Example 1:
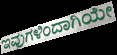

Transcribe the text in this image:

ಇವುಗಳಿಂದಾಗಿಯೇ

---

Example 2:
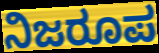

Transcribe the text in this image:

ನಿಜರೂಪ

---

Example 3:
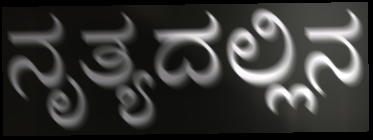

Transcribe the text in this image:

ನೃತ್ಯದಲ್ಲಿನ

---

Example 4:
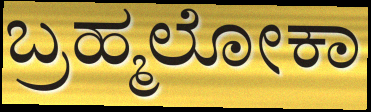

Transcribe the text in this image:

ಬ್ರಹ್ಮಲೋಕಾ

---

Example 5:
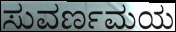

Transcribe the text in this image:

ಸುವರ್ಣಮಯ